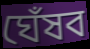
ঘেঁষব